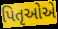
પિતૃઓેએ